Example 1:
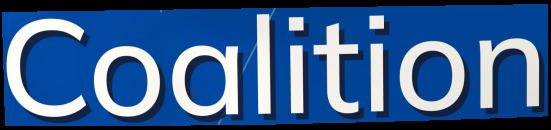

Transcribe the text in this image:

Coalition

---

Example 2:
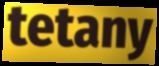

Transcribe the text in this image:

tetany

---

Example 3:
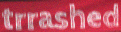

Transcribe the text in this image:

trrashed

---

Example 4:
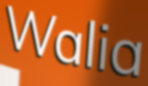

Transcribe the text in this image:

Walia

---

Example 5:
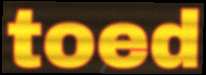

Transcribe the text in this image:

toed